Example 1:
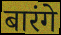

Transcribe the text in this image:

बारंगे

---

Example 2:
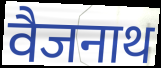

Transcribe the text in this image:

वैजनाथ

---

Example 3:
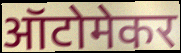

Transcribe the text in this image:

ऑटोमेकर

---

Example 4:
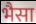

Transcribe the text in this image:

भैसा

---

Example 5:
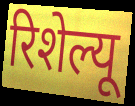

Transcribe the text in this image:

रिशेल्यू